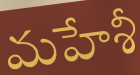
మహేశీ